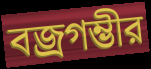
বজ্রগম্ভীর